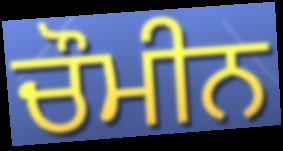
ਚੌਮੀਨ